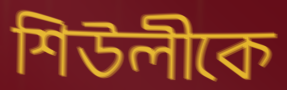
শিউলীকে